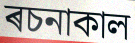
ৰচনাকাল